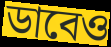
ডাবেও